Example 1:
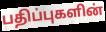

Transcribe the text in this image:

பதிப்புகளின்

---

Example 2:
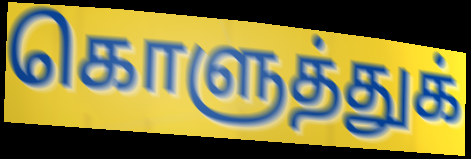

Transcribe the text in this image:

கொளுத்துக்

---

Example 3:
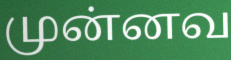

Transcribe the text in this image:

முன்னவ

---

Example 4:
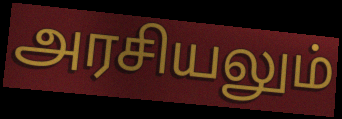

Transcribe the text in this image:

அரசியலும்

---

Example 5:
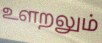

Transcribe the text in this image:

உளறலும்